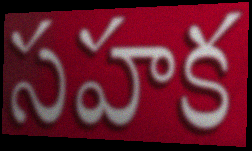
సహక